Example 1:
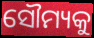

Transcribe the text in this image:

ସୌମ୍ୟକୁ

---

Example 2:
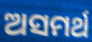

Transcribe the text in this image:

ଅସମର୍ଥ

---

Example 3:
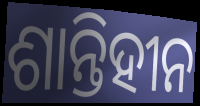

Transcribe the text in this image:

ଶାନ୍ତିହୀନ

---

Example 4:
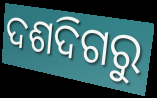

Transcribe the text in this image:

ଦଶଦିଗରୁ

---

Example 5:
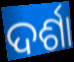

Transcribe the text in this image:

ଦର୍ଶା